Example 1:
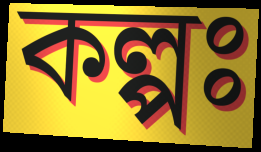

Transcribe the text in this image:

কল্পঃ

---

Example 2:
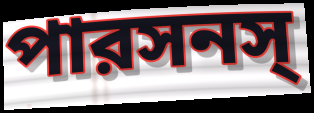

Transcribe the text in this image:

পারসনস্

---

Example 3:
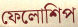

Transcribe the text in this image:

ফেলোশিপ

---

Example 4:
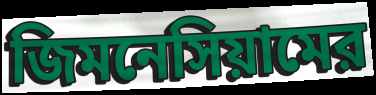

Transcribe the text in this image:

জিমনেসিয়ামের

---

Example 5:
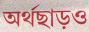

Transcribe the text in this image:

অর্থছাড়ও